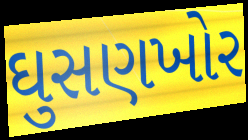
ઘુસણખોર